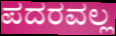
ಪದರವಲ್ಲ